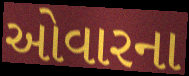
ઓવારના